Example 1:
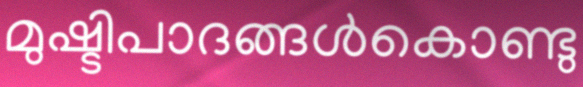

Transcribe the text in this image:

മുഷ്ടിപാദങ്ങൾകൊണ്ടു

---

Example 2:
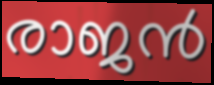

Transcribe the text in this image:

രാജൻ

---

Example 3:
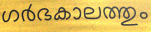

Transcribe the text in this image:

ഗർഭകാലത്തും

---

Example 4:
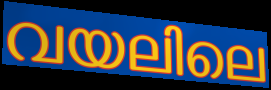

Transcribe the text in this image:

വയലിലെ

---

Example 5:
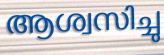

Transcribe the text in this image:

ആശ്വസിച്ചു